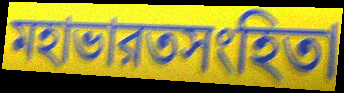
মহাভারতসংহিতা